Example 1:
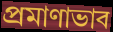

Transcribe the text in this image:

প্রমাণাভাব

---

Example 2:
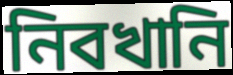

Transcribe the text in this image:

নিবখানি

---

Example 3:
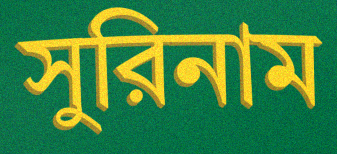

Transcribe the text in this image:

সুরিনাম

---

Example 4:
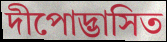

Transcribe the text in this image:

দীপোদ্ভাসিত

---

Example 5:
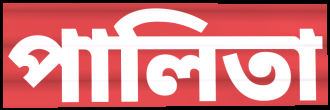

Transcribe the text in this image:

পালিতা